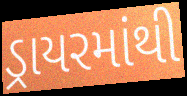
ડ્રાયરમાંથી